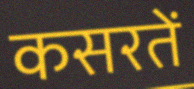
कसरतें